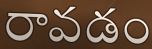
రావడం